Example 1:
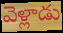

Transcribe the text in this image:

వెళ్లాడు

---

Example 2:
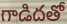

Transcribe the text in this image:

గాడిదతో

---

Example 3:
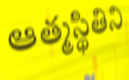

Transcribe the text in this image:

ఆత్మస్థితిని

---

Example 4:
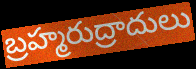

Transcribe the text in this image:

బ్రహ్మరుద్రాదులు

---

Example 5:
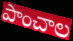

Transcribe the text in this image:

పాంచాల